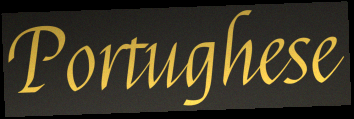
Portughese